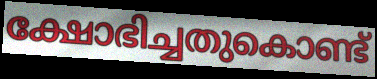
ക്ഷോഭിച്ചതുകൊണ്ട്